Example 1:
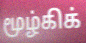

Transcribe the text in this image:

மூழ்கிக்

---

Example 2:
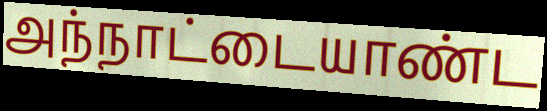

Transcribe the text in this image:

அந்நாட்டையாண்ட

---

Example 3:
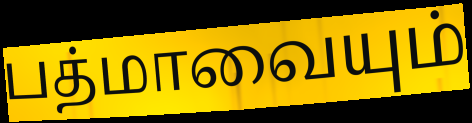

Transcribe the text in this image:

பத்மாவையும்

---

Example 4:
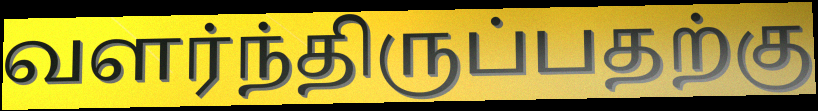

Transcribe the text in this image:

வளர்ந்திருப்பதற்கு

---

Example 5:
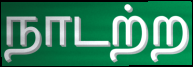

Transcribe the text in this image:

நாடற்ற